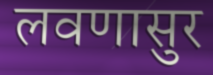
लवणासुर